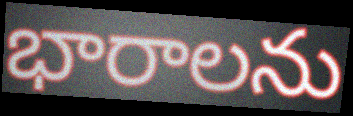
భారాలను